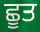
ਛੂਤ